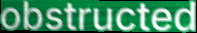
obstructed